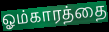
ஓம்காரத்தை